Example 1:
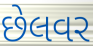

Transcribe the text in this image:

છેલવર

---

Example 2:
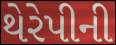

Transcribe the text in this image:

થેરેપીની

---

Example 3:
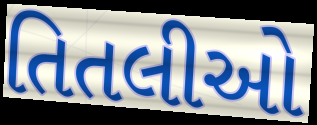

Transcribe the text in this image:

તિતલીઓ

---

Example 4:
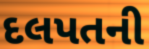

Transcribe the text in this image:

દલપતની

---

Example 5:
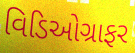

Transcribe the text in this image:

વિડિઓગ્રાફર